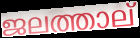
ജലത്താല്